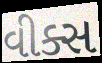
વીક્સ